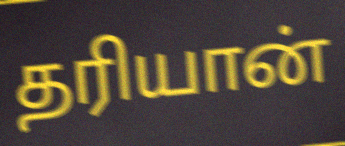
தரியான்